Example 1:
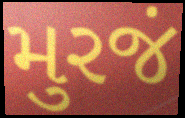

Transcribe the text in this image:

મુરજં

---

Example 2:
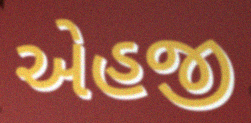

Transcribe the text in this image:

એહજી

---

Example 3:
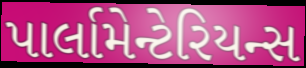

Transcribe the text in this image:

પાર્લામેન્ટેરિયન્સ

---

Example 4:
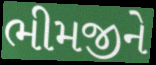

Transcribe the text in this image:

ભીમજીને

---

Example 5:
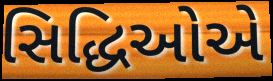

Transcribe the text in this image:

સિદ્ધિઓએ